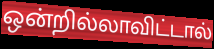
ஒன்றில்லாவிட்டால்